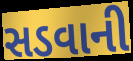
સડવાની